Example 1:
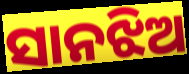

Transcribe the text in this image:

ସାନଝିଅ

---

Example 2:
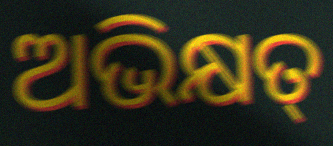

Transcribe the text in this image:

ଅଭିକ୍ଷତ୍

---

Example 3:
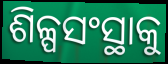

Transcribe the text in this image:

ଶିଳ୍ପସଂସ୍ଥାକୁ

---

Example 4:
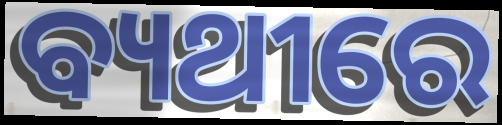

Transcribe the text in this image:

ବ୍ୟଥୀରେ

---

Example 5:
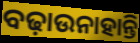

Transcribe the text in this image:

ବଢ଼ାଉନାହାନ୍ତି